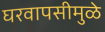
घरवापसीमुळे